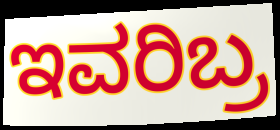
ಇವರಿಬ್ರ